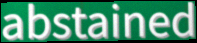
abstained